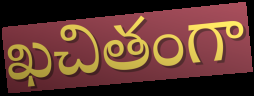
ఖచితంగా